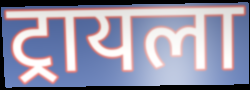
ट्रायला